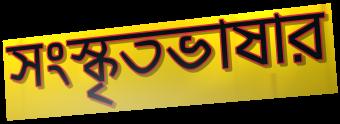
সংস্কৃতভাষার